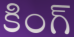
కింగ్